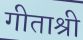
गीताश्री